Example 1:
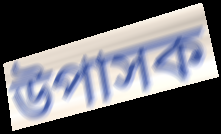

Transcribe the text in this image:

উপাসক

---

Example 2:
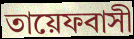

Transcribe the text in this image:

তায়েফবাসী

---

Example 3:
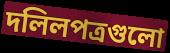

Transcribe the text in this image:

দলিলপত্রগুলো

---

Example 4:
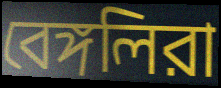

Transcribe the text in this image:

বেঙ্গলিরা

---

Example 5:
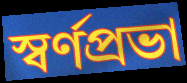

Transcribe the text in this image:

স্বর্ণপ্রভা